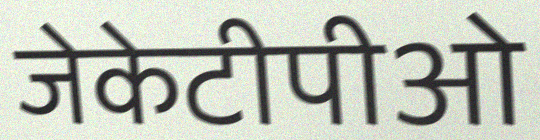
जेकेटीपीओ